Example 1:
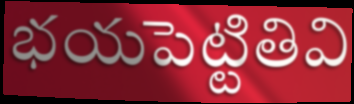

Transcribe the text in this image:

భయపెట్టితివి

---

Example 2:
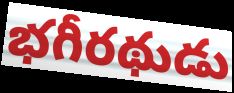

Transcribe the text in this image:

భగీరథుడు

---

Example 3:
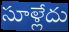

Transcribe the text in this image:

సూళ్లేదు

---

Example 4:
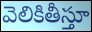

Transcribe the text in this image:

వెలికితీస్తూ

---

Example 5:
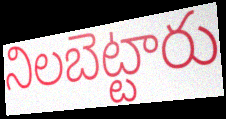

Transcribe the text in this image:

నిలబెట్టారు